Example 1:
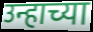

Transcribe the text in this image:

उन्हाच्या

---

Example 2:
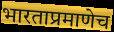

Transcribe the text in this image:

भारताप्रमाणेच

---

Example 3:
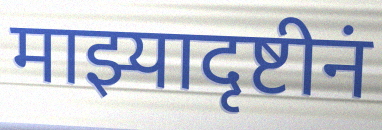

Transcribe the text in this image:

माझ्यादृष्टीनं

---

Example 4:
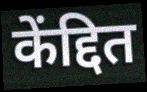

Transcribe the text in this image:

केंद्दित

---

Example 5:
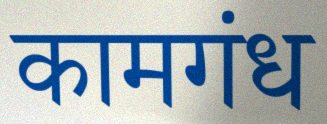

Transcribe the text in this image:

कामगंध